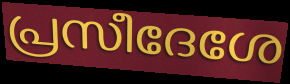
പ്രസീദേശേ